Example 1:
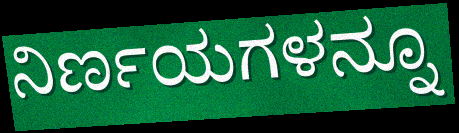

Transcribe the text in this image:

ನಿರ್ಣಯಗಳನ್ನೂ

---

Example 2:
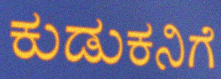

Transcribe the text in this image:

ಕುಡುಕನಿಗೆ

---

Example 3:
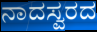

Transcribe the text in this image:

ನಾದಸ್ವರದ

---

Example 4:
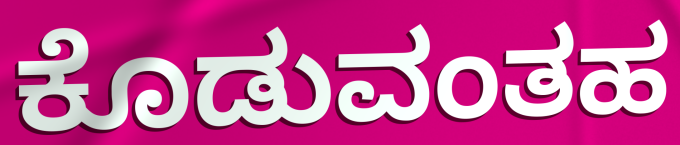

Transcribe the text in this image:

ಕೊಡುವಂತಹ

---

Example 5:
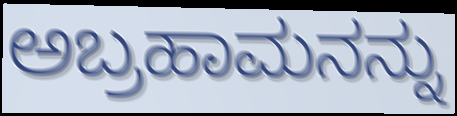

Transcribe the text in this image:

ಅಬ್ರಹಾಮನನ್ನು